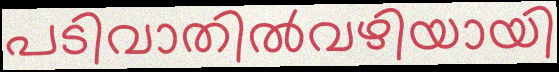
പടിവാതിൽവഴിയായി